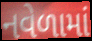
નવેળામાં